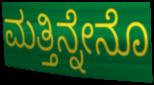
ಮತ್ತಿನ್ನೇನೊ